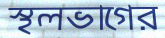
স্থলভাগের